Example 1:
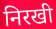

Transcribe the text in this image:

निरखी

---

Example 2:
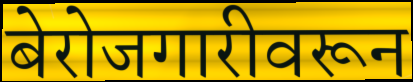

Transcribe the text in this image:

बेरोजगारीवरून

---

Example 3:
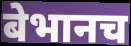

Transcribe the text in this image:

बेभानच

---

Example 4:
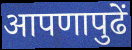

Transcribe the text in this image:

आपणापुढें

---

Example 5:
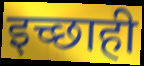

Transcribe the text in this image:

इच्छाही